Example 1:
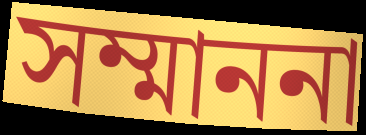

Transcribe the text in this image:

সম্মাননা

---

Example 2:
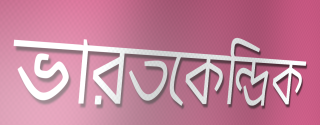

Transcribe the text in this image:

ভারতকেন্দ্রিক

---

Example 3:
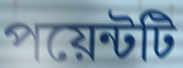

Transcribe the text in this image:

পয়েন্টটি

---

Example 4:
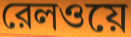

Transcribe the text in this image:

রেলওয়ে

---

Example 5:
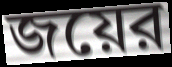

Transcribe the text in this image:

জয়ের